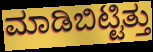
ಮಾಡಿಬಿಟ್ಟಿತ್ತು